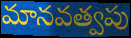
మానవత్వపు